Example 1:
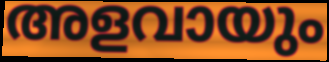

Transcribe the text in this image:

അളവായും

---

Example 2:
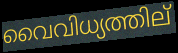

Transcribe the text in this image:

വൈവിധ്യത്തില്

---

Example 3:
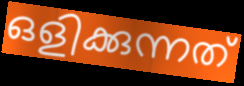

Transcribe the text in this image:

ഒളിക്കുന്നത്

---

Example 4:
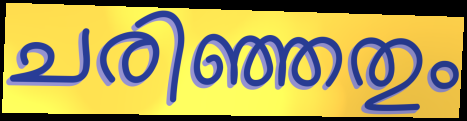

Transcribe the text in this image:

ചരിഞ്ഞതും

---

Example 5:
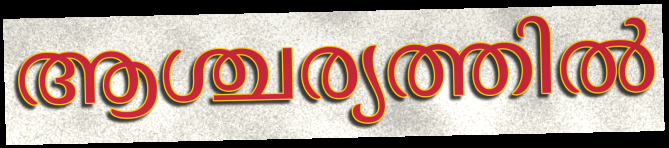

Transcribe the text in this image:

ആശ്ചര്യത്തിൽ